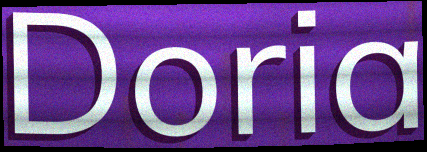
Doria